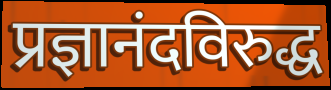
प्रज्ञानंदविरुद्ध